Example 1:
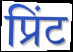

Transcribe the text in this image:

प्रिंट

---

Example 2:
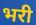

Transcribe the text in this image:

भरी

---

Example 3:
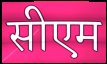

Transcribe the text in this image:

सीएम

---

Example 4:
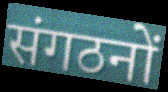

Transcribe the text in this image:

संगठनों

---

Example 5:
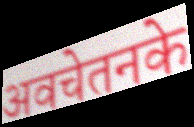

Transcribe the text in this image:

अवचेतनके